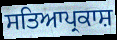
ਸਤਿਆਪ੍ਰਕਾਸ਼